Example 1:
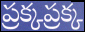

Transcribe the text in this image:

ప్రక్కప్రక్క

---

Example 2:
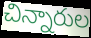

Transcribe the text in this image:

చిన్నారుల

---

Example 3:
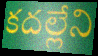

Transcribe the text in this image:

కదల్లేని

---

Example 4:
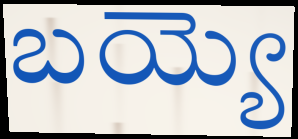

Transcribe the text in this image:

బయ్యె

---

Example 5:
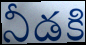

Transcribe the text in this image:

నీడకి